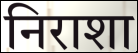
निराशा